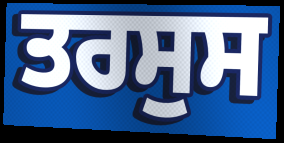
ਤਰਸੁਸ